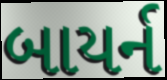
બાયર્ન